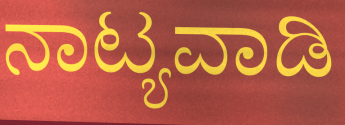
ನಾಟ್ಯವಾಡಿ